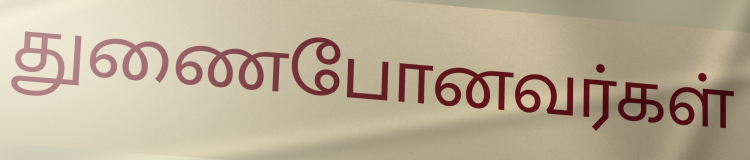
துணைபோனவர்கள்